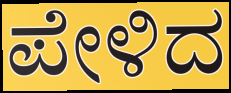
ಪೇಳಿದ